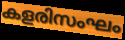
കളരിസംഘം